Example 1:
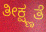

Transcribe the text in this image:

ತೀಕ್ಷ್ಣತೆ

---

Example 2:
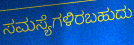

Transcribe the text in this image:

ಸಮಸ್ಯೆಗಳಿರಬಹುದು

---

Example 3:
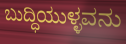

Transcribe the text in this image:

ಬುದ್ಧಿಯುಳ್ಳವನು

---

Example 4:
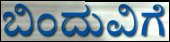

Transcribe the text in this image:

ಬಿಂದುವಿಗೆ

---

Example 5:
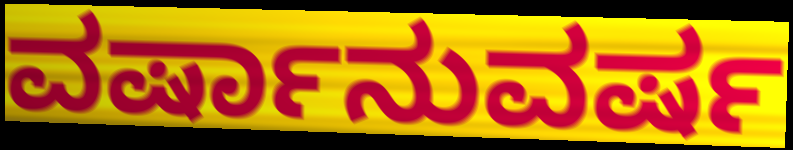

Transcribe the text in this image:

ವರ್ಷಾನುವರ್ಷ